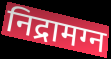
निद्रामग्न